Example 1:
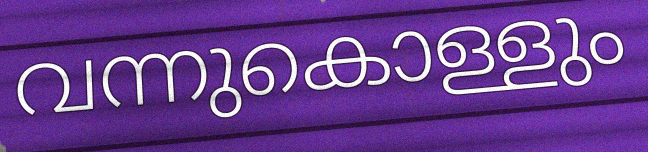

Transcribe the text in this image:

വന്നുകൊള്ളും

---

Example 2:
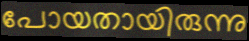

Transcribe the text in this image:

പോയതായിരുന്നു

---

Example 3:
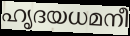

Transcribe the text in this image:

ഹൃദയധമനീ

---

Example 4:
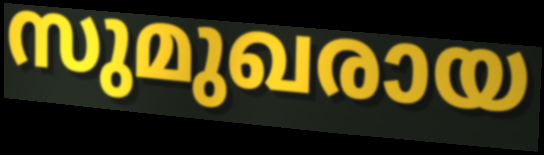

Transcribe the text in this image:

സുമുഖരായ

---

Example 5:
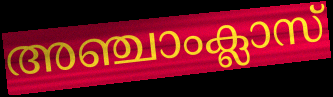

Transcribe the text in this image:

അഞ്ചാംക്ലാസ്